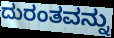
ದುರಂತವನ್ನು